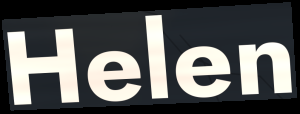
Helen